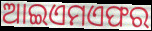
ଆଇଏମଏଫର